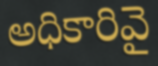
అధికారివై